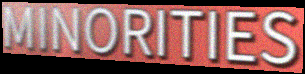
MINORITIES